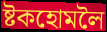
ষ্টকহোমলৈ